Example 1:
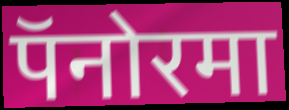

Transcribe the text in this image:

पॅनोरमा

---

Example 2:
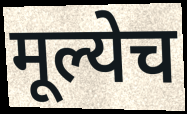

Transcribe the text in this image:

मूल्येच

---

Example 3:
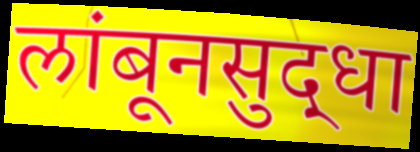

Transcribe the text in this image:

लांबूनसुद्धा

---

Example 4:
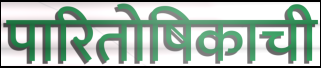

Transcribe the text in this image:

पारितोषिकाची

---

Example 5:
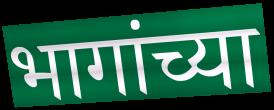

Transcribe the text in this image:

भागांच्या